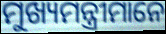
ମୁଖ୍ୟମନ୍ତ୍ରୀମାନେ